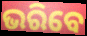
ଭରିବେ